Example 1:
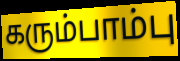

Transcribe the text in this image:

கரும்பாம்பு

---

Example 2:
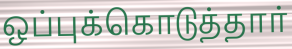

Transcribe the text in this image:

ஒப்புக்கொடுத்தார்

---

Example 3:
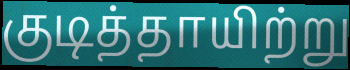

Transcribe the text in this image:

குடித்தாயிற்று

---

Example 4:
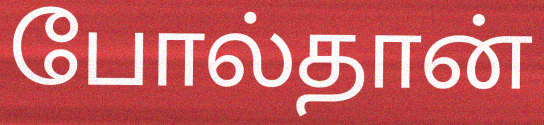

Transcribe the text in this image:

போல்தான்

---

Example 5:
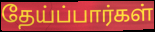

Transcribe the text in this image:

தேய்ப்பார்கள்